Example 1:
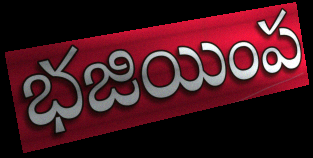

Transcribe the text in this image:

భజియింప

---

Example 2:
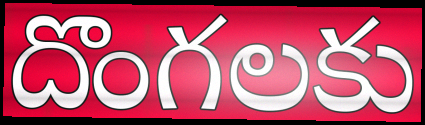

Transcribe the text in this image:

దొంగలకు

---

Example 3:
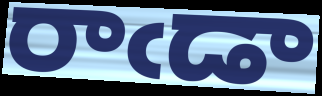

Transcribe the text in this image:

రాఁడా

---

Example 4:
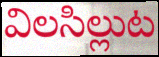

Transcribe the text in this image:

విలసిల్లుట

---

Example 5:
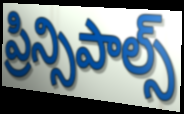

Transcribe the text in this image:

ప్రిన్సిపాల్స్